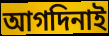
আগদিনাই